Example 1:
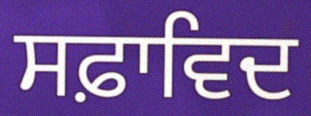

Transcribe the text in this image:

ਸਫ਼ਾਵਿਦ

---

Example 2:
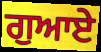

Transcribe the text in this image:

ਗੁਆਏ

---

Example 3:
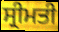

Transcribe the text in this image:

ਸ੍ਰੀਮਤੀ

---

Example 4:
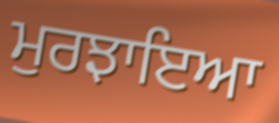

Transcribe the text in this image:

ਮੁਰਝਾਇਆ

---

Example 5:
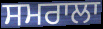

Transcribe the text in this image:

ਸਮਰਾਲਾ